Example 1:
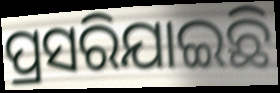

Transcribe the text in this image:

ପ୍ରସରିଯାଇଛି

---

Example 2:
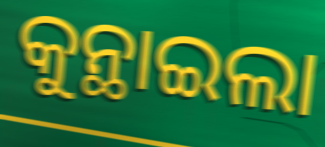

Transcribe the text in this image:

କୁନ୍ଥାଇଲା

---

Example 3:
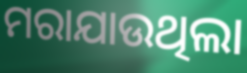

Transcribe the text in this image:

ମରାଯାଉଥିଲା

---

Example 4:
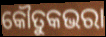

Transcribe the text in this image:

କୌତୁକଭରା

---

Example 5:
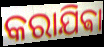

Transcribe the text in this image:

କରାଯିଵା